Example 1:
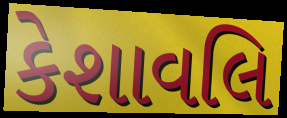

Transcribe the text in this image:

કેશાવલિ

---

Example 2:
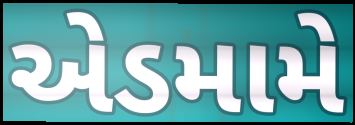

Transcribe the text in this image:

એડમામે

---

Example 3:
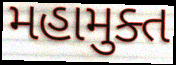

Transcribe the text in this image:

મહામુક્ત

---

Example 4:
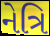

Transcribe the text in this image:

નેત્રિ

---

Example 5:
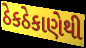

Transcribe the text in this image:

ઠેકઠેકાણેથી